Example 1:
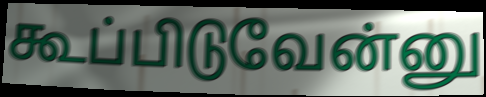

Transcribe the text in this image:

கூப்பிடுவேன்னு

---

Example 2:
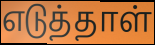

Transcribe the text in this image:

எடுத்தாள்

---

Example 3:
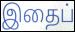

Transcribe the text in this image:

இதைப்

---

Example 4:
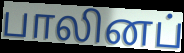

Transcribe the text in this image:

பாலினப்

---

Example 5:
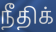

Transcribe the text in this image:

நீதிக்